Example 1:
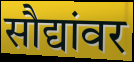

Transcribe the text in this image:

सौद्यांवर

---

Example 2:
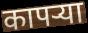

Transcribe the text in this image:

कापर्‍या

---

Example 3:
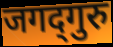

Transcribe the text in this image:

जगद्‍गुरु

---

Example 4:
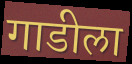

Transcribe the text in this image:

गाडीला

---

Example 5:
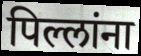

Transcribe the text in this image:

पिल्लांना